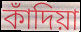
কাঁদিয়া